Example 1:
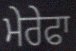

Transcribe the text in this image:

ਮੇਰੇਫਾ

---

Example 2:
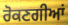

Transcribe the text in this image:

ਰੋਕਣਗੀਆਂ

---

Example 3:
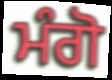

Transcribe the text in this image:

ਮੰਗੋ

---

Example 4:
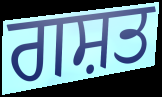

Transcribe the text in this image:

ਗਸ਼ਤ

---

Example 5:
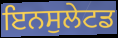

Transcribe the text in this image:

ਇਨਸੁਲੇਟਡ